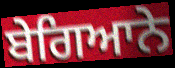
ਬੇਗਿਆਨੇ